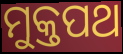
ମୁକ୍ତପଥ